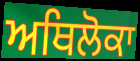
ਅਥਿਲੋਕਾ